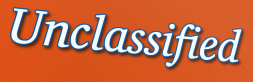
Unclassified